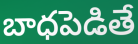
బాధపెడితే